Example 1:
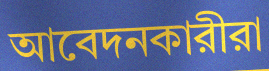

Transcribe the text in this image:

আবেদনকারীরা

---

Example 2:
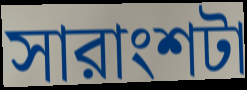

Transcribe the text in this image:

সারাংশটা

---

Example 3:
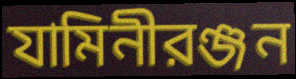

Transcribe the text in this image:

যামিনীরঞ্জন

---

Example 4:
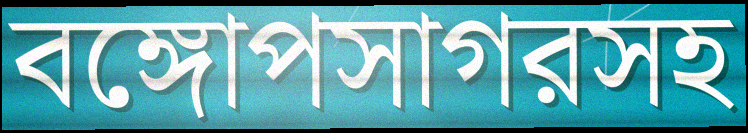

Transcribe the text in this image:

বঙ্গোপসাগরসহ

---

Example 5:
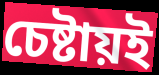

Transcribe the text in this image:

চেষ্টায়ই